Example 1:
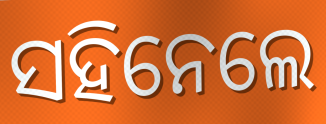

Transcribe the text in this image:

ସହିନେଲେ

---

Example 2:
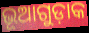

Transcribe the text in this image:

ଭୂଆଗୁଡ଼ାକ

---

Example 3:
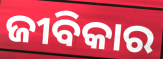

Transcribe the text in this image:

ଜୀବିକାର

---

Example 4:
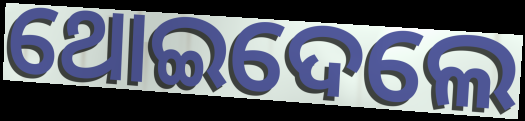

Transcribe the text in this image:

ଥୋଇଦେଲେ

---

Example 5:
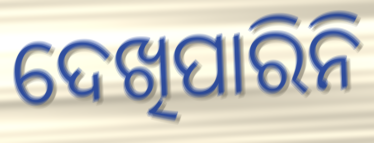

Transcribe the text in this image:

ଦେଖିପାରିନି